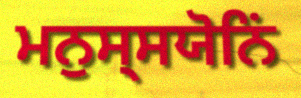
ਮਨੁਸ੍ਸਯੋਨਿਂ